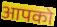
आपको